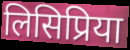
लिसिप्रिया